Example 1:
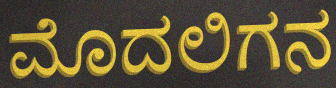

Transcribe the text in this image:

ಮೊದಲಿಗನ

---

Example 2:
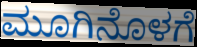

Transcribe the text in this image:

ಮೂಗಿನೊಳಗೆ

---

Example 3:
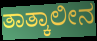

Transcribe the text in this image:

ತಾತ್ಕಾಲೀನ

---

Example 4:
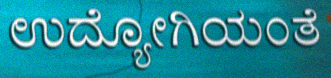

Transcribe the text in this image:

ಉದ್ಯೋಗಿಯಂತೆ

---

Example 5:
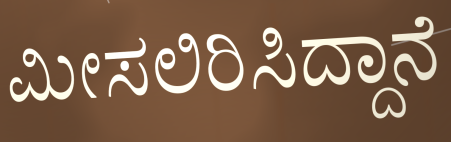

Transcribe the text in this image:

ಮೀಸಲಿರಿಸಿದ್ದಾನೆ